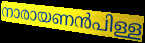
നാരായണൻപിള്ള